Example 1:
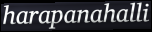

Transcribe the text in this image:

harapanahalli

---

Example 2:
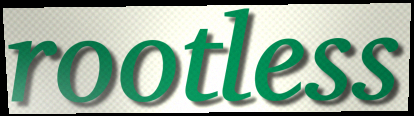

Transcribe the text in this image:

rootless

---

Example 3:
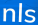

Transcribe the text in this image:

nls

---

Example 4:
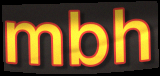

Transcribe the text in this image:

mbh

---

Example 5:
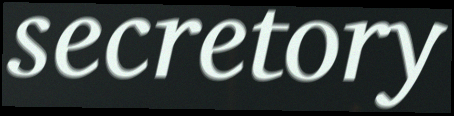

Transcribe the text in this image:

secretory